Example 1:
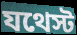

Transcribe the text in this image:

যথেস্ট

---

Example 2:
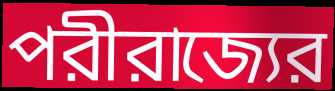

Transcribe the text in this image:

পরীরাজ্যের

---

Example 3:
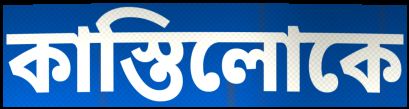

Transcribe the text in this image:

কাস্তিলোকে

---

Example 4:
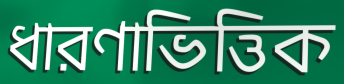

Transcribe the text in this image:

ধারণাভিত্তিক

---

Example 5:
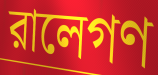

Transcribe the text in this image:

রালেগণ